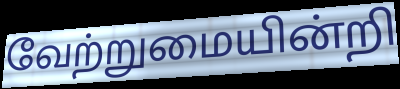
வேற்றுமையின்றி